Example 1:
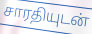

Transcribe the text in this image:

சாரதியுடன்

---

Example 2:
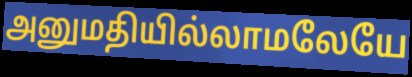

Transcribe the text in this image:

அனுமதியில்லாமலேயே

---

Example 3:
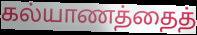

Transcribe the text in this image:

கல்யாணத்தைத்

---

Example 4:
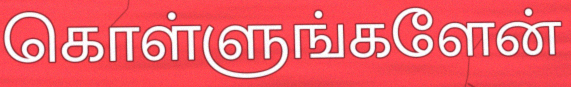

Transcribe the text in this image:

கொள்ளுங்களேன்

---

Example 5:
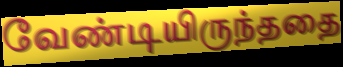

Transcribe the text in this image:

வேண்டியிருந்ததை